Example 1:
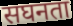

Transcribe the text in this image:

सघनता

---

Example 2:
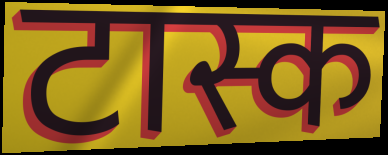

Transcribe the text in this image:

टास्क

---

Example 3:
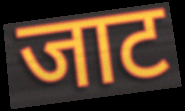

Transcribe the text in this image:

जाट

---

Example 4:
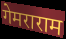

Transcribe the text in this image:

गेमराराम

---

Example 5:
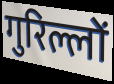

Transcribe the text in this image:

गुरिल्लों